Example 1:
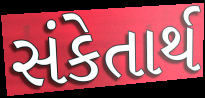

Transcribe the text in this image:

સંકેતાર્થ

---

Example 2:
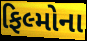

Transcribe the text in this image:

ફિલ્મોના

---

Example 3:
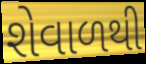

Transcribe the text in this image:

શેવાળથી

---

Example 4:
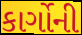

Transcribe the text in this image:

કાર્ગોની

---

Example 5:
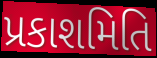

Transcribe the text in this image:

પ્રકાશમિતિ